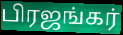
பிரஜங்கர்